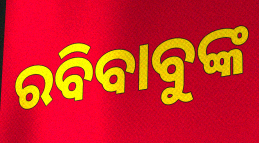
ରବିବାବୁଙ୍କ